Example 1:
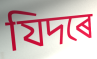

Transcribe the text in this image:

যিদৰে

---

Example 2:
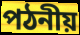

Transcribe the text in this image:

পঠনীয়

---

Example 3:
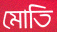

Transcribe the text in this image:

মোতি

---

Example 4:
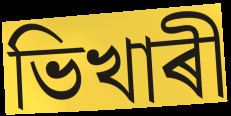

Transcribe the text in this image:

ভিখাৰী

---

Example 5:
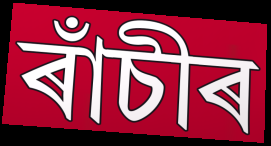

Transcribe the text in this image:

ৰাঁচীৰ